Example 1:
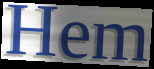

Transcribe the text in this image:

Hem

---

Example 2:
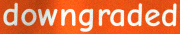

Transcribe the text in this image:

downgraded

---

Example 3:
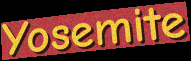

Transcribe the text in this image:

Yosemite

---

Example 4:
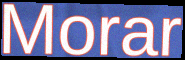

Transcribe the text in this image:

Morar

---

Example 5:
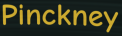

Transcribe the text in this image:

Pinckney